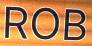
ROB